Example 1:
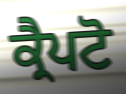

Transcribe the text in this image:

ਕ੍ਰੈਪਟੋ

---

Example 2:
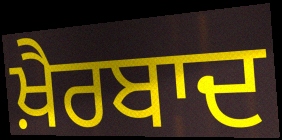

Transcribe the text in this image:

ਖ਼ੈਰਬਾਦ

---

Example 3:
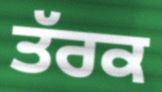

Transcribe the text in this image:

ਤੱਰਕ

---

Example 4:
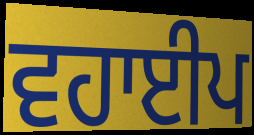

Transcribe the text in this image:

ਵਹਾਈਪ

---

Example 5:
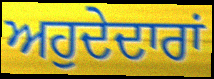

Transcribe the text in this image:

ਅਹੁਦੇਦਾਰਾਂ